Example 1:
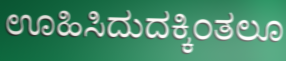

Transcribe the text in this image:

ಊಹಿಸಿದುದಕ್ಕಿಂತಲೂ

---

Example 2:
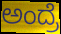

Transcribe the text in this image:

ಅಂದ್ರೆ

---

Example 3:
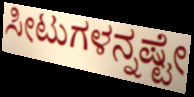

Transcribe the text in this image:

ಸೀಟುಗಳನ್ನಷ್ಟೇ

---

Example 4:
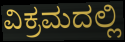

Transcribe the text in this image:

ವಿಕ್ರಮದಲ್ಲಿ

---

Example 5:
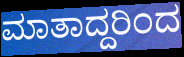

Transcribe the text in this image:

ಮಾತಾದ್ದರಿಂದ